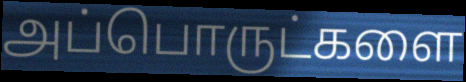
அப்பொருட்களை